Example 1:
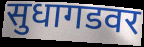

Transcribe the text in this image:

सुधागडवर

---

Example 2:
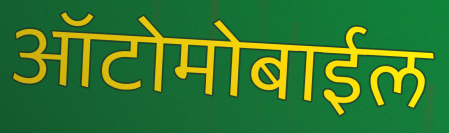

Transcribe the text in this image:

ऑटोमोबाईल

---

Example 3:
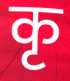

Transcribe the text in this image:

कृ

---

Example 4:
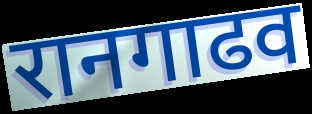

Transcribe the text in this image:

रानगाढव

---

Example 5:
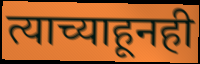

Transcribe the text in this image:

त्याच्याहूनही